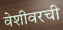
वेशीवरची